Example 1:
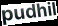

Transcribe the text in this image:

pudhil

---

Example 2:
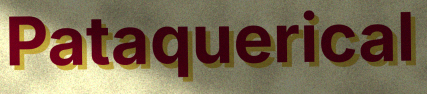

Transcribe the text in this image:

Pataquerical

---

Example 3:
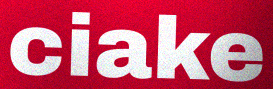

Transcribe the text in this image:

ciake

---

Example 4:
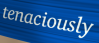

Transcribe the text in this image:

tenaciously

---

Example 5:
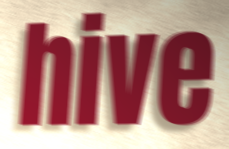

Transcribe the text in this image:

hive